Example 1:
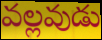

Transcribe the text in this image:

వల్లవుడు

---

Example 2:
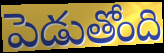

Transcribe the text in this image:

పెడుతోంది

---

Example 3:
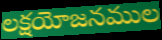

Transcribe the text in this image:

లక్షయోజనముల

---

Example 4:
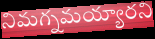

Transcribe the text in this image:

నిమగ్నమయ్యారని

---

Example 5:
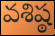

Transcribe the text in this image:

వశిష్ఠ